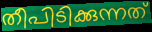
തീപിടിക്കുന്നത്